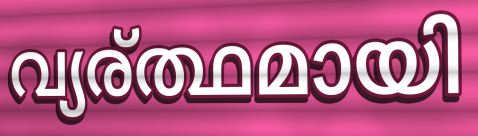
വ്യര്ത്ഥമായി